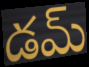
డమ్